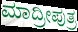
ಮಾದ್ರೀಪುತ್ರ